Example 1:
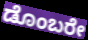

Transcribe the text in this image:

ಡೊಂಬರೇ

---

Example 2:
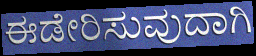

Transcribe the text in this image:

ಈಡೇರಿಸುವುದಾಗಿ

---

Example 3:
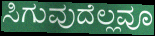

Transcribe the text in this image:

ಸಿಗುವುದೆಲ್ಲವೂ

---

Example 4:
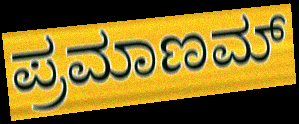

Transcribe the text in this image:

ಪ್ರಮಾಣಮ್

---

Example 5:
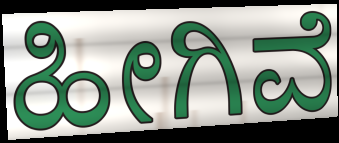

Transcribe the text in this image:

ಹೀಗಿವೆ